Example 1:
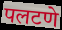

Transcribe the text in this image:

पलटणे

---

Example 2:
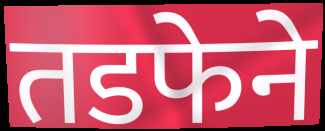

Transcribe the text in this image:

तडफेने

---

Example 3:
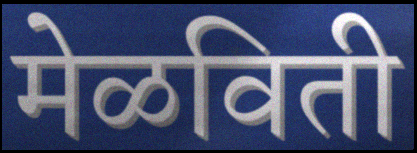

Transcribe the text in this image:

मेळविती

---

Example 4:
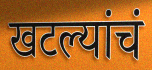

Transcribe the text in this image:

खटल्यांचं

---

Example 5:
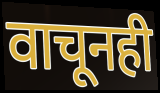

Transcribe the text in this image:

वाचूनही